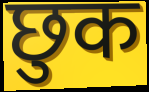
छुक